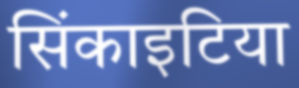
सिंकाइटिया